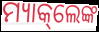
ମ୍ୟାକ୍‌ଲେଙ୍କ